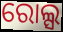
ରୋଲ୍ସ